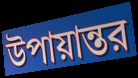
উপায়ান্তর